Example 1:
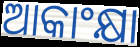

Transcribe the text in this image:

ଆକାଂକ୍ଷା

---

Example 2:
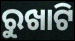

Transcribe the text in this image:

ରୁଖାଟି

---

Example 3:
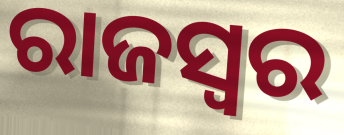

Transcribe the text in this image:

ରାଜସ୍ବର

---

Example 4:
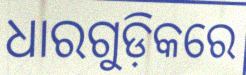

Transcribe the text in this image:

ଧାରଗୁଡ଼ିକରେ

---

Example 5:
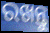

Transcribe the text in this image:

ରଖନ୍ତୁ